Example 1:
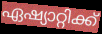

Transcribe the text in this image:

ഏഷ്യാറ്റിക്ക്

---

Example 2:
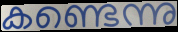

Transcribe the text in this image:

കണ്ടെന്നു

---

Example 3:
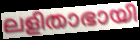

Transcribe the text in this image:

ലളിതാഭായി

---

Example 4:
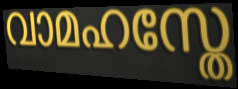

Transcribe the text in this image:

വാമഹസ്തേ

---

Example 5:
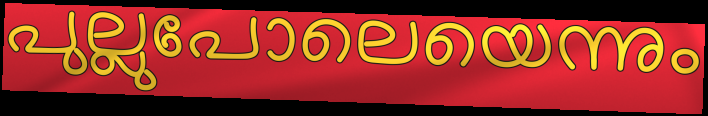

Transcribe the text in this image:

പുല്ലുപോലെയെന്നും